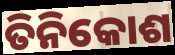
ତିନିକୋଶ